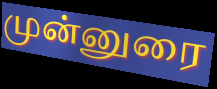
முன்னுரை